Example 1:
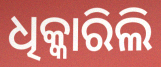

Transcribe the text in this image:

ଧିକ୍କାରିଲି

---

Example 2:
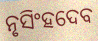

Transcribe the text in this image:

ନୃସିଂହଦେବ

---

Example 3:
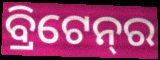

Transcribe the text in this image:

ବ୍ରିଟେନ୍‌ର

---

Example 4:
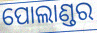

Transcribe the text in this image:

ପୋଲାଣ୍ଡର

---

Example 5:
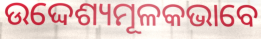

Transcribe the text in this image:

ଉଦ୍ଦେଶ୍ୟମୂଳକଭାବେ